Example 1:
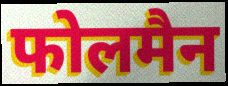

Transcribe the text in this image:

फोलमैन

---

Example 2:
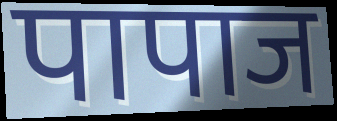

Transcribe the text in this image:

पापाज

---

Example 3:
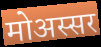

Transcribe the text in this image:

मोअस्सर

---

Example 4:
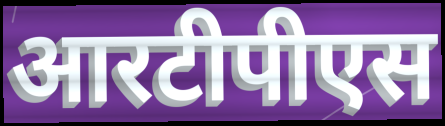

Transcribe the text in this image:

आरटीपीएस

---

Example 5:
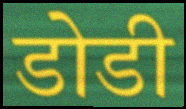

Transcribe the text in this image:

डोडी